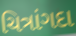
ચિત્રાંગદા